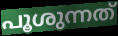
പൂശുന്നത്